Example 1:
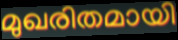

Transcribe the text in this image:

മുഖരിതമായി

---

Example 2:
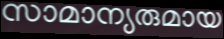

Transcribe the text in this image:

സാമാന്യരുമായ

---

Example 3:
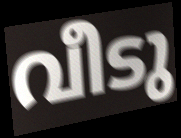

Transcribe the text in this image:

വീടു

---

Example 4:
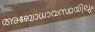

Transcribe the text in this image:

അബോധാവസ്ഥയിലും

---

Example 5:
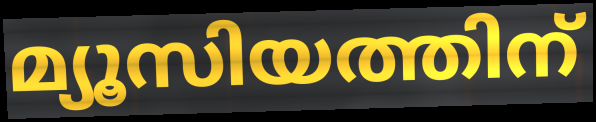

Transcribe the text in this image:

മ്യൂസിയത്തിന്